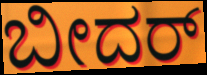
ಬೀದರ್